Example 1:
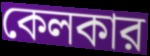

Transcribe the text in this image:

কেলকার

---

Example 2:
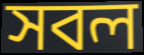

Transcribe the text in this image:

সবল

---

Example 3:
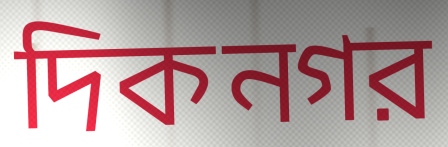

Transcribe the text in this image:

দিকনগর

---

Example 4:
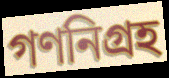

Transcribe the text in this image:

গণনিগ্রহ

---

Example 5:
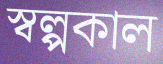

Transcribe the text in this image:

স্বল্পকাল